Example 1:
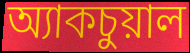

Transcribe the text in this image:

অ্যাকচুয়াল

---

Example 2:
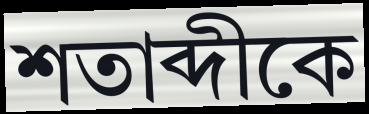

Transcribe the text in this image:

শতাব্দীকে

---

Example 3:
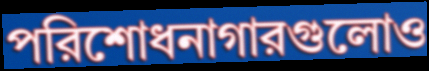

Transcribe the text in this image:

পরিশোধনাগারগুলোও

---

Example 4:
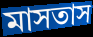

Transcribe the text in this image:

মাসতাস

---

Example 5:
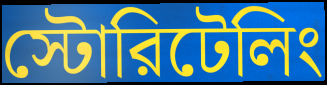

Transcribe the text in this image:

স্টোরিটেলিং